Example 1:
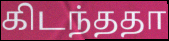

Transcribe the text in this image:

கிடந்ததா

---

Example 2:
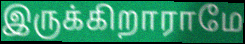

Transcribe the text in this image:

இருக்கிறாராமே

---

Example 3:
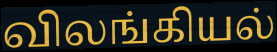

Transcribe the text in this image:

விலங்கியல்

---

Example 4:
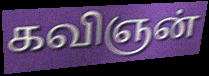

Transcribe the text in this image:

கவிஞன்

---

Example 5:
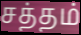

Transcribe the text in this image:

சத்தம்